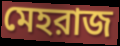
মেহরাজ